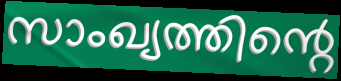
സാംഖ്യത്തിന്റെ